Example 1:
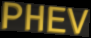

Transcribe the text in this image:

PHEV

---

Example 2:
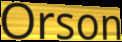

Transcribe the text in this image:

Orson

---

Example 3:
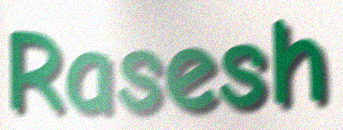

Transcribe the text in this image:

Rasesh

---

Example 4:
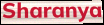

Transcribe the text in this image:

Sharanya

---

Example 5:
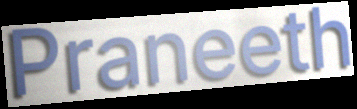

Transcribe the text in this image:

Praneeth